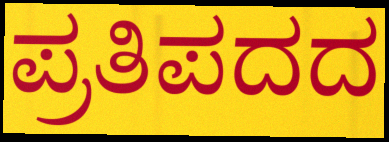
ಪ್ರತಿಪದದ